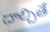
దాల్చితే